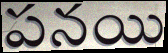
పనయి